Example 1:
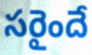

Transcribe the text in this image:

సరైందే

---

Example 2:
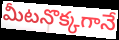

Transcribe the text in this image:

మీటనొక్కగానే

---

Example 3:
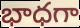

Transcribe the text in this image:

భాధగా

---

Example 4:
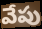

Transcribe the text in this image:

వేపు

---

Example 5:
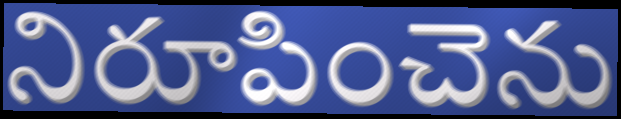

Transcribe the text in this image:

నిరూపించెను